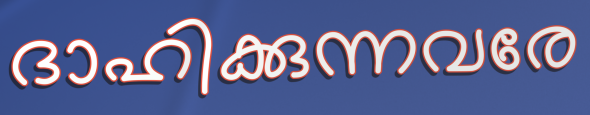
ദാഹിക്കുന്നവരേ